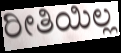
ರೀತಿಯಿಲ್ಲ